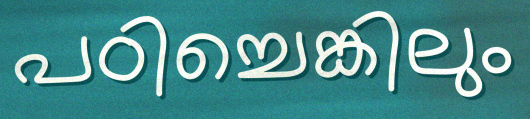
പഠിച്ചെങ്കിലും